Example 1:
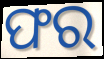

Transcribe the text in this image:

ଫର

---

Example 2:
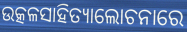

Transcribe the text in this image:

ଉତ୍କଳସାହିତ୍ୟାଲୋଚନାରେ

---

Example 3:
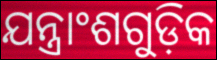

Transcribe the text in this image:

ଯନ୍ତ୍ରାଂଶଗୁଡ଼ିକ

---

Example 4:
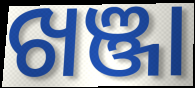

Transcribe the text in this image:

ଖଞ୍ଜା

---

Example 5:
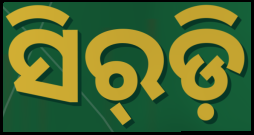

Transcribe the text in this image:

ସିର୍‌ଡ଼ି